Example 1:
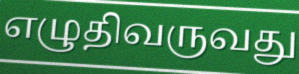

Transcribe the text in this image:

எழுதிவருவது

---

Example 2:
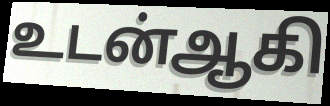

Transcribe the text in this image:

உடன்ஆகி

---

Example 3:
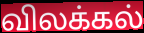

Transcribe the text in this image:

விலக்கல்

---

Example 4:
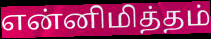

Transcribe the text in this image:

என்னிமித்தம்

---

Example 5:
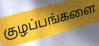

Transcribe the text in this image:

குழப்பங்களை